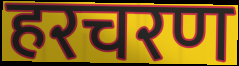
हरचरण